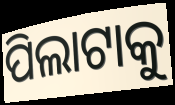
ପିଲାଟାକୁ